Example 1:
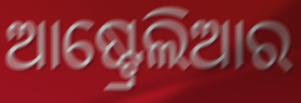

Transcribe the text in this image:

ଆଷ୍ଟ୍ରେଲିଆର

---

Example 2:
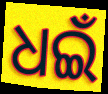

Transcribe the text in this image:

ଧଇଁ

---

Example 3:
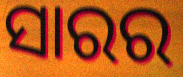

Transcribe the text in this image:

ସାରର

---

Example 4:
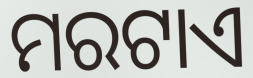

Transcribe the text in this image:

ମରଟାଏ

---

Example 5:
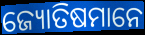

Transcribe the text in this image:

ଜ୍ୟୋତିଷମାନେ